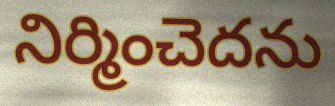
నిర్మించెదను